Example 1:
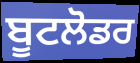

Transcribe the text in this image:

ਬੂਟਲੋਡਰ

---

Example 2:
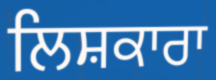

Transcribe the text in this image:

ਲਿਸ਼ਕਾਰਾ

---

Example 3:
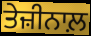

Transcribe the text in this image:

ਤੇਜ਼ੀਨਾਲ਼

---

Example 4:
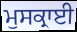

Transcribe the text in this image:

ਮੁਸਕ੍ਰਾਈ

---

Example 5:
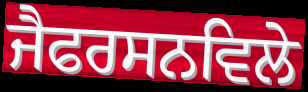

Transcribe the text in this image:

ਜੈਫਰਸਨਵਿਲੇ